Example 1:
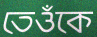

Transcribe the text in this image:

তেওঁকে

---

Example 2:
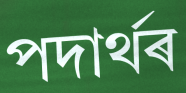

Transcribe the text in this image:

পদাৰ্থৰ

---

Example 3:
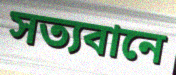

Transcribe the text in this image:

সত্যবানে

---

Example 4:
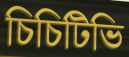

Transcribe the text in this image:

চিচিটিভি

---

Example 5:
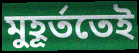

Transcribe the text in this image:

মুহূৰ্ততেই